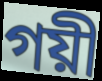
গয়ী